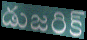
డుజరిక్